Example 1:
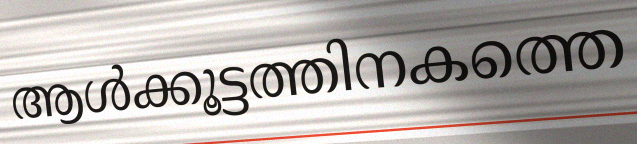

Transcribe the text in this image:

ആൾക്കൂട്ടത്തിനകത്തെ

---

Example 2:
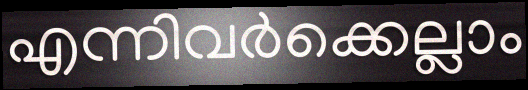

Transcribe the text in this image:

എന്നിവർക്കെല്ലാം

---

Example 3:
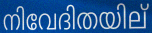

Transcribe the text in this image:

നിവേദിതയില്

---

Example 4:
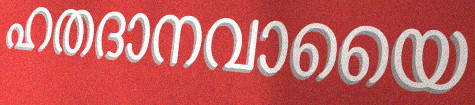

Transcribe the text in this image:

ഹതദാനവായൈ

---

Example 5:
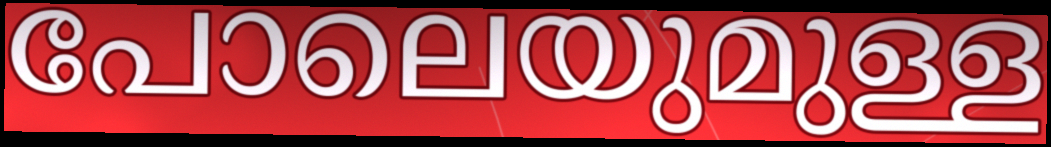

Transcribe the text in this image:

പോലെയുമുള്ള